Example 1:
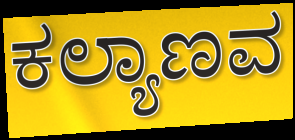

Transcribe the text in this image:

ಕಲ್ಯಾಣವ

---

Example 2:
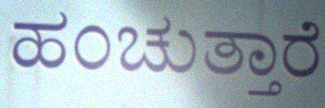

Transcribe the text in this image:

ಹಂಚುತ್ತಾರೆ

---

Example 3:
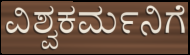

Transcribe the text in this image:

ವಿಶ್ವಕರ್ಮನಿಗೆ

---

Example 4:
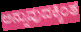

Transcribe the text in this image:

ಅನ್ನುವುದಕ್ಕಿಂತ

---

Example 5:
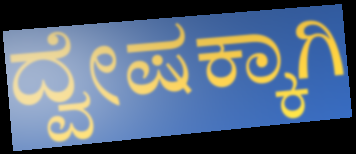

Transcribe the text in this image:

ದ್ವೇಷಕ್ಕಾಗಿ